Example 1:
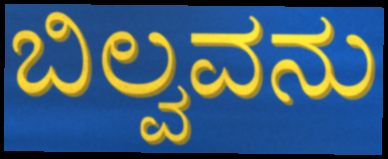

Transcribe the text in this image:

ಬಿಲ್ವವನು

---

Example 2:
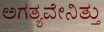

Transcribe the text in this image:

ಅಗತ್ಯವೇನಿತ್ತು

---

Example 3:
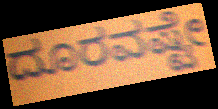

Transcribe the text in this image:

ದೂರವಷ್ಟೇ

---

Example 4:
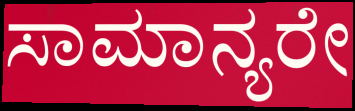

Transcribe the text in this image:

ಸಾಮಾನ್ಯರೇ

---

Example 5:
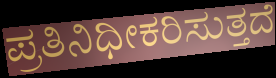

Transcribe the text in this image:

ಪ್ರತಿನಿಧೀಕರಿಸುತ್ತದೆ